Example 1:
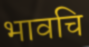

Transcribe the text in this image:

भावचि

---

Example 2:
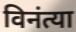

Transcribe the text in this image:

विनंत्या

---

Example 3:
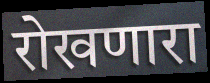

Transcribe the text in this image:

रोखणारा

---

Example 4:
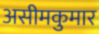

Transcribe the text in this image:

असीमकुमार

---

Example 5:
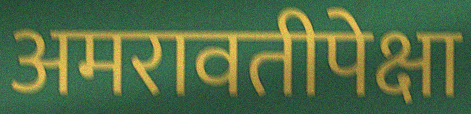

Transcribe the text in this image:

अमरावतीपेक्षा